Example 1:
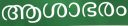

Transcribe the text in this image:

ആശാഭരം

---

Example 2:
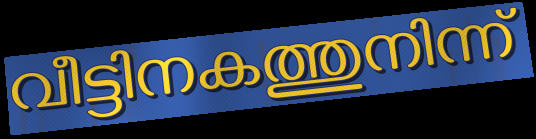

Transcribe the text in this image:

വീട്ടിനകത്തുനിന്ന്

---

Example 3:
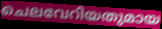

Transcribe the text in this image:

ചെലവേറിയതുമായ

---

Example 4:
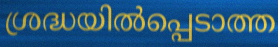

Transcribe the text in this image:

ശ്രദ്ധയിൽപ്പെടാത്ത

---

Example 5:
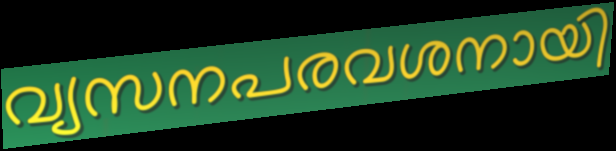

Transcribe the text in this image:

വ്യസനപരവശനായി